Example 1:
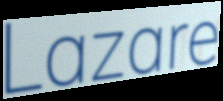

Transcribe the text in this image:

Lazare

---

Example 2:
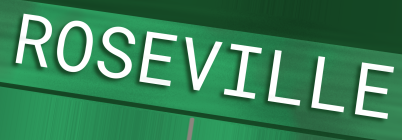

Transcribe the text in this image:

ROSEVILLE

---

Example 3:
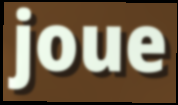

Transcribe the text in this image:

joue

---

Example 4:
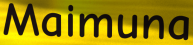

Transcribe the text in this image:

Maimuna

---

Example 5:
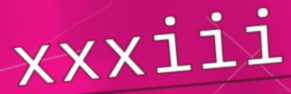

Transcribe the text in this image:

xxxiii